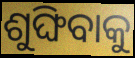
ଶୁଙ୍ଘିବାକୁ